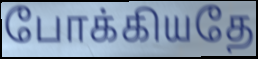
போக்கியதே